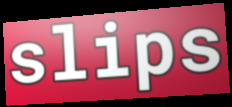
slips